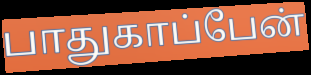
பாதுகாப்பேன்